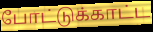
போட்டுக்காட்ட